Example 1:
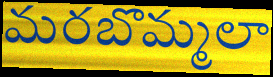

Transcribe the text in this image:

మరబొమ్మలా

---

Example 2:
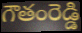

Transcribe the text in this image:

గౌతంరెడ్డి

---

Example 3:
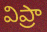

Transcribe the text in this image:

విప్రా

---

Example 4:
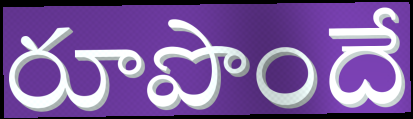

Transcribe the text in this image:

రూపొందే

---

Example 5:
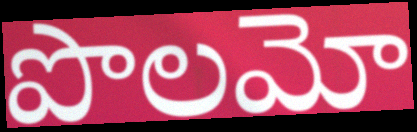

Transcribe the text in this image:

పొలమో